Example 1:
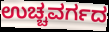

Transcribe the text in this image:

ಉಚ್ಚವರ್ಗದ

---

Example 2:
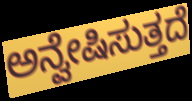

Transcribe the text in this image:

ಅನ್ವೇಷಿಸುತ್ತದೆ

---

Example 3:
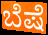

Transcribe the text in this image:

ಬೆಷೆ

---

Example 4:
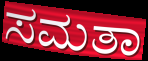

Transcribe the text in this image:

ಸಮತಾ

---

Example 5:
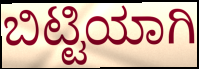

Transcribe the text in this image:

ಬಿಟ್ಟಿಯಾಗಿ